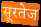
सूरतेज